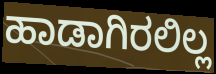
ಹಾಡಾಗಿರಲಿಲ್ಲ